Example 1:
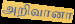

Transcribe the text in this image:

அறிவானா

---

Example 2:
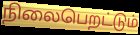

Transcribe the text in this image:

நிலைபெறட்டும்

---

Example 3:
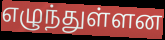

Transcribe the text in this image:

எழுந்துள்ளன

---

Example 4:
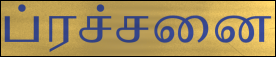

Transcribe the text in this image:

ப்ரச்சனை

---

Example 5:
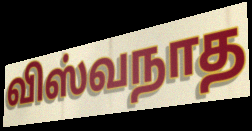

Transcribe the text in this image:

விஸ்வநாத